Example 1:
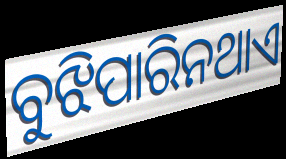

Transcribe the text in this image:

ବୁଝିପାରିନଥାଏ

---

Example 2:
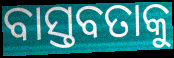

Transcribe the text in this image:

ବାସ୍ତବତାକୁ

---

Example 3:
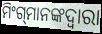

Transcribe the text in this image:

ମିଂଗ୍‍ମାନଙ୍କଦ୍ୱାରା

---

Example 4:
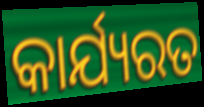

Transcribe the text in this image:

କାର୍ଯ୍ୟରତ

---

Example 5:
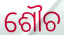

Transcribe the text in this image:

ଶୌଚ